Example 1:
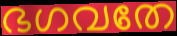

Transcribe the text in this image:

ഭഗവതേ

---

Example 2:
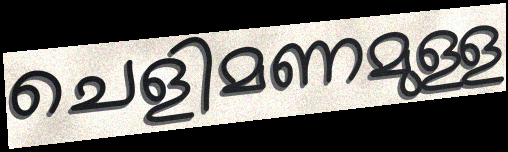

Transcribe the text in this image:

ചെളിമണമുള്ള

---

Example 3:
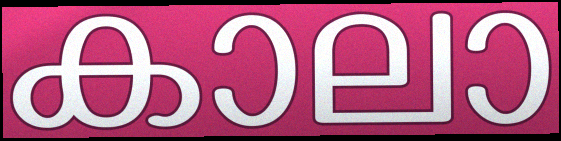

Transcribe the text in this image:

കാലാ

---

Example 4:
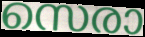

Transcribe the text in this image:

സെരാ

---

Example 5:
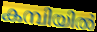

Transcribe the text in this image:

കമ്പിയിൽ